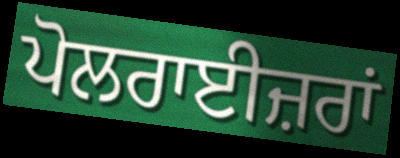
ਪੋਲਰਾਈਜ਼ਰਾਂ